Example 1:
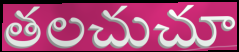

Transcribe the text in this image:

తలచుచూ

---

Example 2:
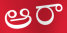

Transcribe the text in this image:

ఆరా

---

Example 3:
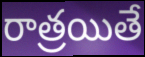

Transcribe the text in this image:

రాత్రయితే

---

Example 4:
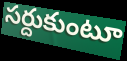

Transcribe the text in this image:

సర్దుకుంటూ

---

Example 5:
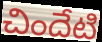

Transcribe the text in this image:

చిందేటి